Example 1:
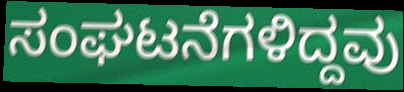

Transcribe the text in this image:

ಸಂಘಟನೆಗಳಿದ್ದವು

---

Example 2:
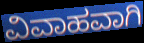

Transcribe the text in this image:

ವಿವಾಹವಾಗಿ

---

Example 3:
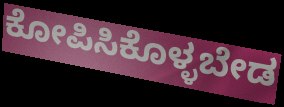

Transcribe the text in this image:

ಕೋಪಿಸಿಕೊಳ್ಳಬೇಡ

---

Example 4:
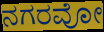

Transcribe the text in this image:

ನಗರವೋ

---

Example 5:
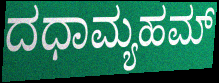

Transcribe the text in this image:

ದಧಾಮ್ಯಹಮ್